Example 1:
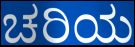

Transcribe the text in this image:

ಚರಿಯ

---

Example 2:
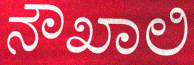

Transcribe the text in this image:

ನೌಖಾಲಿ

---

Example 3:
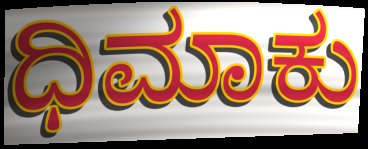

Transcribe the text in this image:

ಧಿಮಾಕು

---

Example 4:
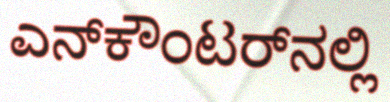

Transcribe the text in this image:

ಎನ್‌ಕೌಂಟರ್‌ನಲ್ಲಿ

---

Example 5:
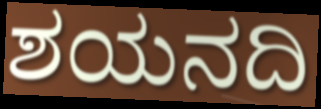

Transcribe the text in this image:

ಶಯನದಿ